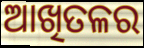
ଆଖିତଳର